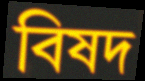
বিষদ